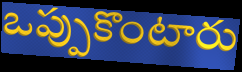
ఒప్పుకొంటారు